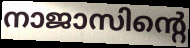
നാജാസിന്റെ